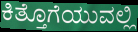
ಕಿತ್ತೊಗೆಯುವಲ್ಲಿ